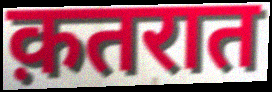
क़तरात